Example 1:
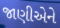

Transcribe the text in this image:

જાણીએને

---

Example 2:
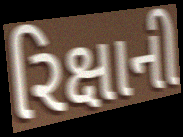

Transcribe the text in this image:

રિક્ષાની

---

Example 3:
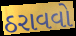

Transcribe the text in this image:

ઠરાવવો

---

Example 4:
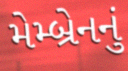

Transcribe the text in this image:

મેમ્બ્રેનનું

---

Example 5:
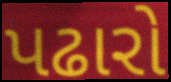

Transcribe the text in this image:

પઢારો